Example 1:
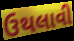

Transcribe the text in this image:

ઉથલાવી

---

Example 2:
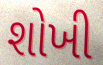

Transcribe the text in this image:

શોખી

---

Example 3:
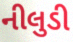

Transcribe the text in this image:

નીલુડી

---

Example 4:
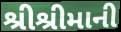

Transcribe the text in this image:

શ્રીશ્રીમાની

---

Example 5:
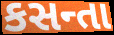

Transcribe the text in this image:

કસન્તા